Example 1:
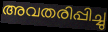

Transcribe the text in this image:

അവതരിപ്പിച്ചു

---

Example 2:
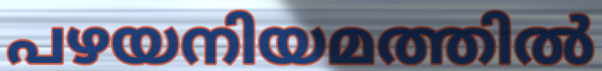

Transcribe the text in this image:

പഴയനിയമത്തിൽ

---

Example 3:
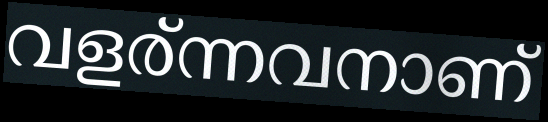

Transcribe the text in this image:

വളര്ന്നവനാണ്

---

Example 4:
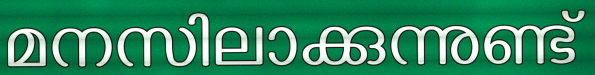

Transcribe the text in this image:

മനസിലാക്കുന്നുണ്ട്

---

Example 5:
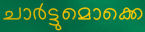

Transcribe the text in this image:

ചാർട്ടുമൊക്കെ